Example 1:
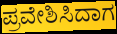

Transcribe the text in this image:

ಪ್ರವೇಶಿಸಿದಾಗ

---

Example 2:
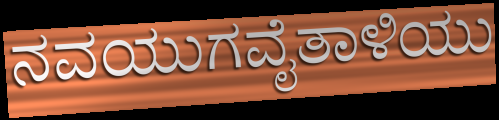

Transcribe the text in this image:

ನವಯುಗವೈತಾಳಿಯು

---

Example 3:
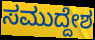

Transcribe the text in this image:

ಸಮುದ್ದೇಶ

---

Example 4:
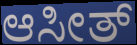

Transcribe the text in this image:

ಆಸೀತ್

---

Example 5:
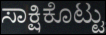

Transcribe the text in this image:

ಸಾಕ್ಷಿಕೊಟ್ಟು